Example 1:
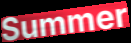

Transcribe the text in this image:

Summer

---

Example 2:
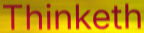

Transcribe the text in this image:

Thinketh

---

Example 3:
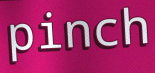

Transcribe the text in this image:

pinch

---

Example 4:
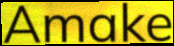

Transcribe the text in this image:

Amake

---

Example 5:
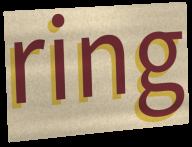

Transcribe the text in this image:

ring